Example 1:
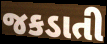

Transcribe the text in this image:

જકડાતી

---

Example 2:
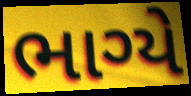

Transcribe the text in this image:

ભાગ્યે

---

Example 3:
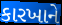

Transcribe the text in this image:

કારખાને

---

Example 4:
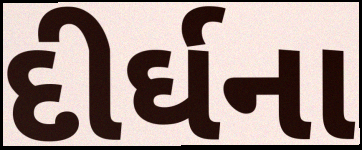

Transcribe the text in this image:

દીર્ઘના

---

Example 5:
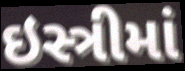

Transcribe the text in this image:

ઇસ્ત્રીમાં